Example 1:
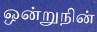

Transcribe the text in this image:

ஒன்றுநின்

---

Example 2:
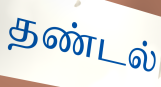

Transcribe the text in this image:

தண்டல்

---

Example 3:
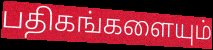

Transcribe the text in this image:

பதிகங்களையும்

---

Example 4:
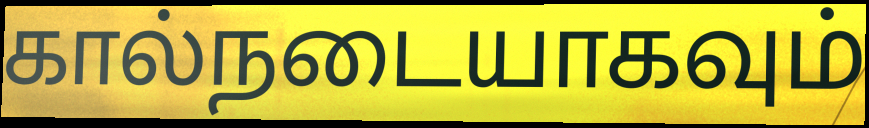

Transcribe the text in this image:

கால்நடையாகவும்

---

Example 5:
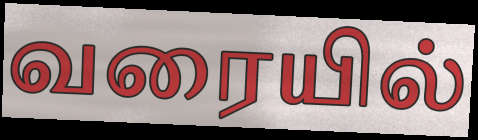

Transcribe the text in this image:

வரையில்